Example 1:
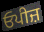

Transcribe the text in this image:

ਓਪੀਜ਼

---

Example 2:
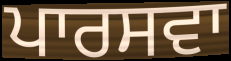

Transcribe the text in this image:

ਪਾਰਸਵਾ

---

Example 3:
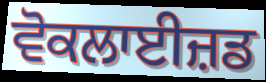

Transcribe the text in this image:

ਵੋਕਲਾਈਜ਼ਡ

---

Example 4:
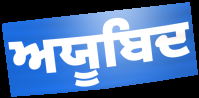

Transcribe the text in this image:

ਅਯੂਬਿਦ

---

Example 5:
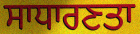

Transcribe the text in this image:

ਸਾਧਾਰਣਤਾ